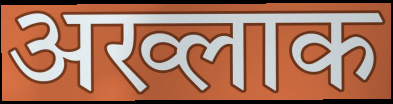
अख्लाक